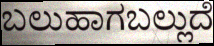
ಬಲುಹಾಗಬಲ್ಲುದೆ